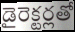
డైరెక్టర్లతో